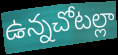
ఉన్నచోటల్లా